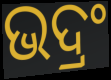
ଭଦ୍ରଂ